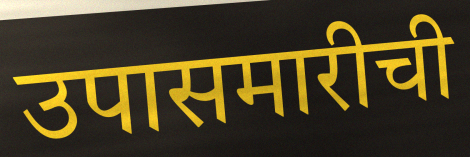
उपासमारीची